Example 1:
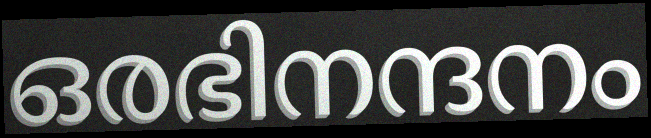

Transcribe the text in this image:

ഒരഭിനന്ദനം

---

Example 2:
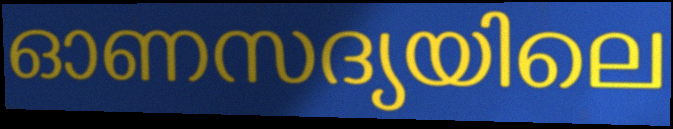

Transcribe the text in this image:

ഓണസദ്യയിലെ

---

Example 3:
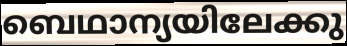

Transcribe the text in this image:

ബെഥാന്യയിലേക്കു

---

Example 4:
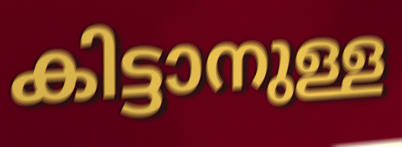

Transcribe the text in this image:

കിട്ടാനുള്ള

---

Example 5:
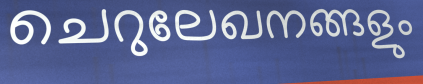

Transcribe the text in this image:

ചെറുലേഖനങ്ങളും